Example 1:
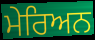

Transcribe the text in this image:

ਮੇਰਿਅਨ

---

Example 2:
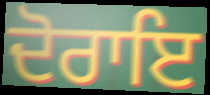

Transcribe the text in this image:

ਦੋਰਾਇ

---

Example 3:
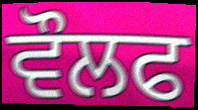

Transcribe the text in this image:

ਵੌਲਫ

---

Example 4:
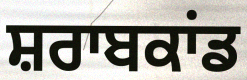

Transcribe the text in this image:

ਸ਼ਰਾਬਕਾਂਡ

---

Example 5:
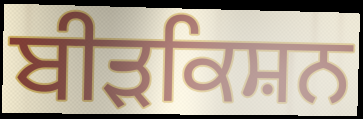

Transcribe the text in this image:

ਬੀੜਕਿਸ਼ਨ